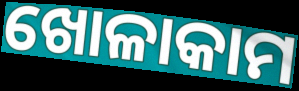
ଖୋଳାକାମ